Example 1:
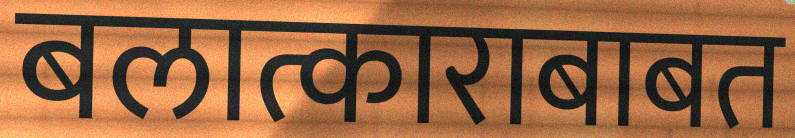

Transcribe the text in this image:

बलात्काराबाबत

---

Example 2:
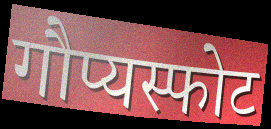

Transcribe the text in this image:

गौप्यस्फोट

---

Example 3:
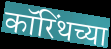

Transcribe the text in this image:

कॉरिंथच्या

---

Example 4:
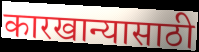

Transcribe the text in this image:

कारखान्यासाठी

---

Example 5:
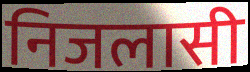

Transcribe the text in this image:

निजलासी